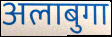
अलाबुगा